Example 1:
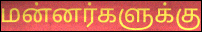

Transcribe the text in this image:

மன்னர்களுக்கு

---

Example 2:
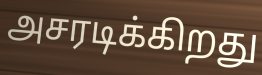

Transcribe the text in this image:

அசரடிக்கிறது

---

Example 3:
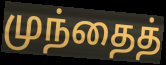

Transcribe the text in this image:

முந்தைத்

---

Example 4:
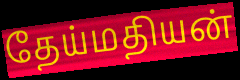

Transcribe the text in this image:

தேய்மதியன்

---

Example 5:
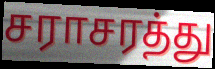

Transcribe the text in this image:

சராசரத்து